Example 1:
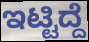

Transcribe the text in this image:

ಇಟ್ಟಿದ್ದೆ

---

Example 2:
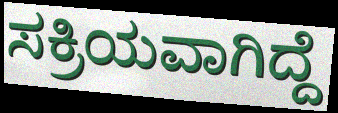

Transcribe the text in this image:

ಸಕ್ರಿಯವಾಗಿದ್ದೆ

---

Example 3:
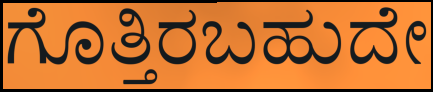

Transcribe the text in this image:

ಗೊತ್ತಿರಬಹುದೇ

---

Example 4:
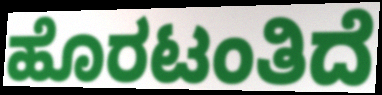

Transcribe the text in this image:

ಹೊರಟಂತಿದೆ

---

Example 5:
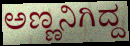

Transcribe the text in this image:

ಅಣ್ಣನಿಗಿದ್ದ